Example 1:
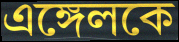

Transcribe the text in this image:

এঙ্গেলকে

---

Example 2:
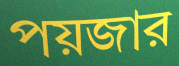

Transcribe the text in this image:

পয়জার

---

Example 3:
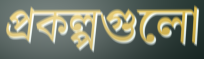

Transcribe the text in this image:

প্রকল্পগুলো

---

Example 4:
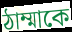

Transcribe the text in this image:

ঠাম্মাকে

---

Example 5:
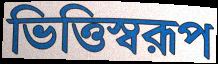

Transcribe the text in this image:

ভিত্তিস্বরূপ